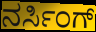
ನರ್ಸಿಂಗ್